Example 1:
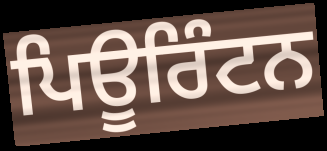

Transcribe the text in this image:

ਪਿਊਰਿੰਟਨ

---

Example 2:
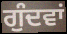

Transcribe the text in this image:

ਗੁੰਦਵਾਂ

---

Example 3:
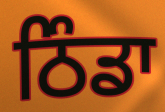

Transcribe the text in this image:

ਠਿੰਡਾ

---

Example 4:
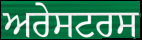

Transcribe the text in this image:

ਅਰੇਸਟਰਸ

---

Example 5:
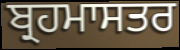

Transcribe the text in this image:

ਬ੍ਰਹਮਾਸਤਰ